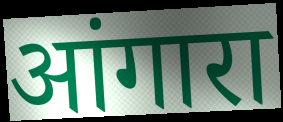
आंगारा